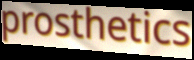
prosthetics